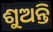
ଶୁଅନ୍ତି